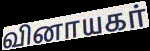
வினாயகர்